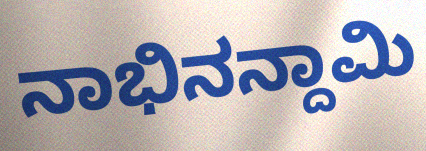
ನಾಭಿನನ್ದಾಮಿ